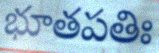
భూతపతిః